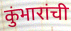
कुंभारांची